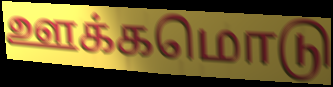
ஊக்கமொடு